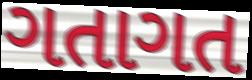
ગતાગત